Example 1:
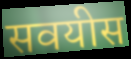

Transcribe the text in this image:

सवयीस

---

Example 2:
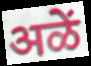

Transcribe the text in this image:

अळें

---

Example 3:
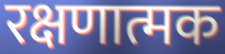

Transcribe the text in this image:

रक्षणात्मक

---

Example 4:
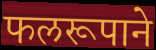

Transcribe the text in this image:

फलरूपाने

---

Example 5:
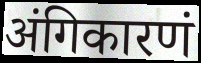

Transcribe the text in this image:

अंगिकारणं